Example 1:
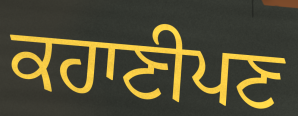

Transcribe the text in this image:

ਕਹਾਣੀਪਣ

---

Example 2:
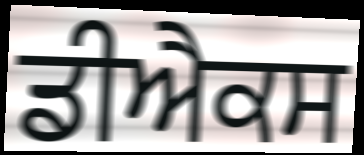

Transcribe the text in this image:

ਡੀਐਕਸ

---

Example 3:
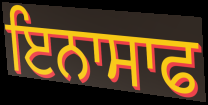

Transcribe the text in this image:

ਇਨਾਸਾਫ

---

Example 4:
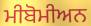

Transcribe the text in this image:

ਮੀਬੋਮੀਅਨ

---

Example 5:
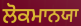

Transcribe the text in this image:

ਲੋਕਮਾਨਯਾ